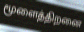
மூளைத்திறனை